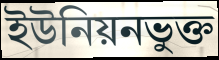
ইউনিয়নভুক্ত